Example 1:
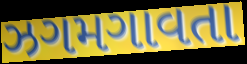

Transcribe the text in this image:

ઝગમગાવતા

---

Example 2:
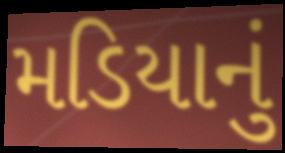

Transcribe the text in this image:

મડિયાનું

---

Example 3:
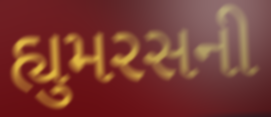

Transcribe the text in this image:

હ્યુમરસની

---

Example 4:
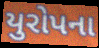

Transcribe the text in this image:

યુરોપના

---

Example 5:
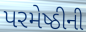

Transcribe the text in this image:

પરમેષ્ઠીની